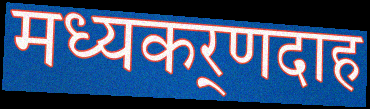
मध्यकर्णदाह